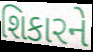
શિકારને